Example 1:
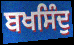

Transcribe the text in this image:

ਬਖਸਿੰਦੁ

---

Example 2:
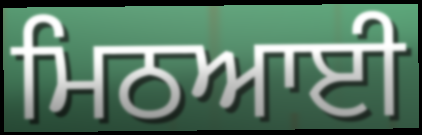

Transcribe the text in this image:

ਮਿਠਆਈ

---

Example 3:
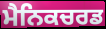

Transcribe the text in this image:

ਮੈਨਿਕਚਰਡ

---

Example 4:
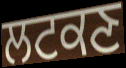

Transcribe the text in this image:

ਲਟਕਣ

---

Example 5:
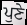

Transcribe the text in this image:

ਪੁਣੇ